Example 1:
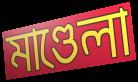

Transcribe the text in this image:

মাণ্ডেলা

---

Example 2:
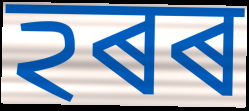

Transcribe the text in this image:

হৰৰ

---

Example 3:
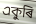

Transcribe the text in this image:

একুৰি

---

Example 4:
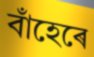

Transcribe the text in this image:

বাঁহেৰে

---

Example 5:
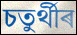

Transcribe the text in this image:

চতুৰ্থীৰ